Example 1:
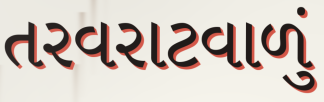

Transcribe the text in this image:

તરવરાટવાળું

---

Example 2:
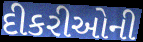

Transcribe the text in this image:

દીકરીઓની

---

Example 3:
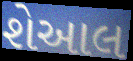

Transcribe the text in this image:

શેઆલ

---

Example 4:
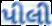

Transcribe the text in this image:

પીલી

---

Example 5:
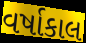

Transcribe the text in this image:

વર્ષાકાલ